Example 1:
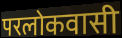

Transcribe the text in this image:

परलोकवासी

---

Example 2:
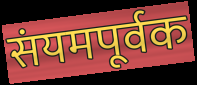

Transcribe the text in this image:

संयमपूर्वक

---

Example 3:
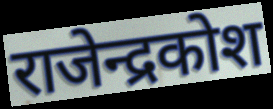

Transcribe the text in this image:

राजेन्द्रकोश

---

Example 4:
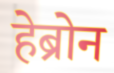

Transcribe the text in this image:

हेब्रोन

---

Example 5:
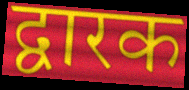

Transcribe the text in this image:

द्वारक